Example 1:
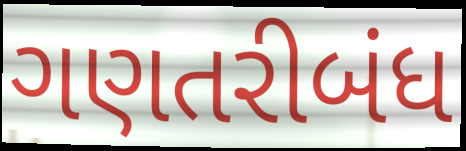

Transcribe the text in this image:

ગણતરીબંધ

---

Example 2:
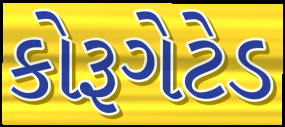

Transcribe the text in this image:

કોરૂગેટેડ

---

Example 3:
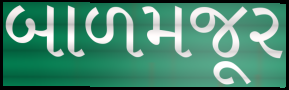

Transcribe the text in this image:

બાળમજૂર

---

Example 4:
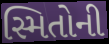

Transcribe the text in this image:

સ્મિતોની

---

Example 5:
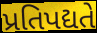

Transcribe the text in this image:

પ્રતિપદ્યતે